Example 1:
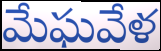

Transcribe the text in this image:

మేఘవేళ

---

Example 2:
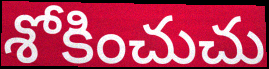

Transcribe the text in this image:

శోకించుచు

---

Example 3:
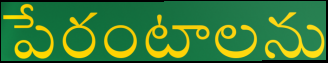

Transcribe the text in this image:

పేరంటాలను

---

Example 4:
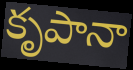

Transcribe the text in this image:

కృపానా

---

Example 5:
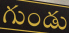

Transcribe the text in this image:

గుండు